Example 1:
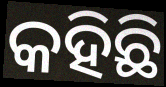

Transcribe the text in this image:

କହିଛି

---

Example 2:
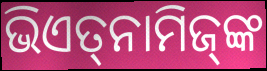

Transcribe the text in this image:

ଭିଏତ୍‌ନାମିଜ୍‌ଙ୍କ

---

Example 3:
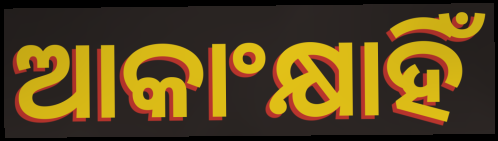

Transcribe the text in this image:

ଆକାଂକ୍ଷାହିଁ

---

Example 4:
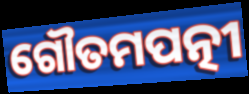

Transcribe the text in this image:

ଗୌତମପତ୍ନୀ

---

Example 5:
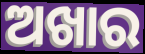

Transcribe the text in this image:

ଅଖାର